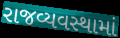
રાજવ્યવસ્થામાં